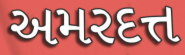
અમરદત્ત